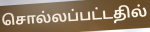
சொல்லப்பட்டதில்